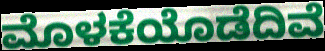
ಮೊಳಕೆಯೊಡೆದಿವೆ